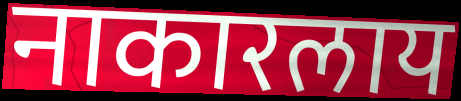
नाकारलाय